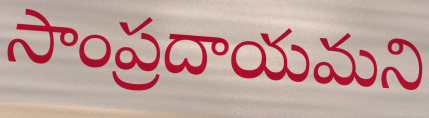
సాంప్రదాయమని